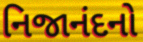
નિજાનંદનો